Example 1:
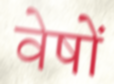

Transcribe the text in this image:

वेषों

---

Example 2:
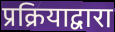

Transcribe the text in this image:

प्रक्रियाद्वारा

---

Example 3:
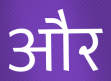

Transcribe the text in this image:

और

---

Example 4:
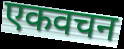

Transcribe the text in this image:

एकवचन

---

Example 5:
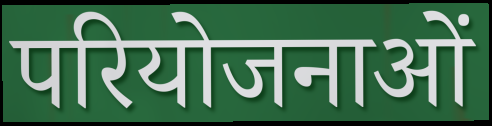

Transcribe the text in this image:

परियोजनाओं